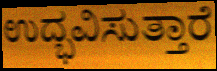
ಉದ್ಭವಿಸುತ್ತಾರೆ